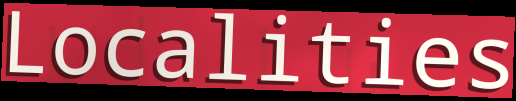
Localities